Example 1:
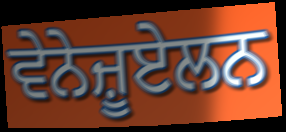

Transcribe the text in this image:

ਵੇਨੇਜ਼ੂਏਲਨ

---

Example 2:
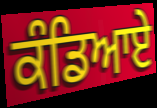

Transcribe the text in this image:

ਕੰਡਿਆਏ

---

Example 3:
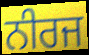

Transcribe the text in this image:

ਨੀਰਜ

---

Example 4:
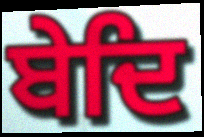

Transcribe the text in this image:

ਬੇਦਿ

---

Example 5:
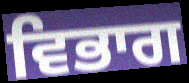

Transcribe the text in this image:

ਵਿਭਾਗ